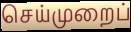
செய்முறைப்